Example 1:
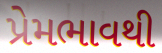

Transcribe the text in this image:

પ્રેમભાવથી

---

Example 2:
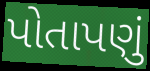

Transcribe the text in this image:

પોતાપણું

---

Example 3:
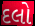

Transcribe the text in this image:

દલો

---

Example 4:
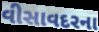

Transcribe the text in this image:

વીસાવદરના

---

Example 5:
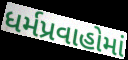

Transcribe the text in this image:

ધર્મપ્રવાહોમાં